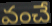
వంచే